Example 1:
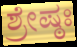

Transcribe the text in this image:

ಶ್ರೇಷ್ಠಃ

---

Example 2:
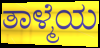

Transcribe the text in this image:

ತಾಳ್ಮೆಯ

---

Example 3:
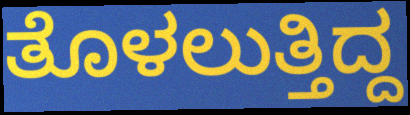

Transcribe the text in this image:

ತೊಳಲುತ್ತಿದ್ದ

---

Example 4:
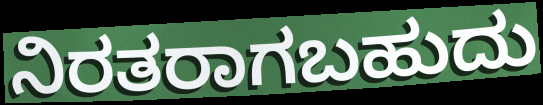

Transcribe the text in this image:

ನಿರತರಾಗಬಹುದು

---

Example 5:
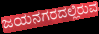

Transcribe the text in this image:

ಜಯನಗರದಲ್ಲಿರುವ